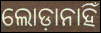
ଲୋଡ଼ାନାହିଁ